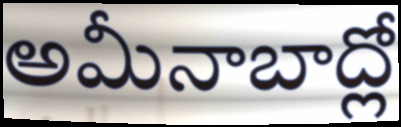
అమీనాబాద్లో